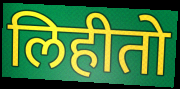
लिहीतो